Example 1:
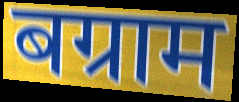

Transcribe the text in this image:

बग्राम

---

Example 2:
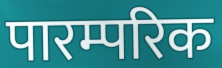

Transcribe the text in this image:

पारम्परिक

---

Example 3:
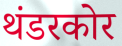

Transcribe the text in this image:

थंडरकोर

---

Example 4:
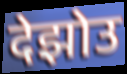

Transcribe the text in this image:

देझोउ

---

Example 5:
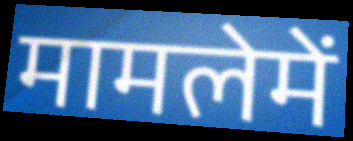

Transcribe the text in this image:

मामलेमें